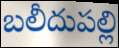
బలీదుపల్లి